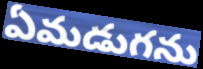
ఏమడుగను